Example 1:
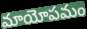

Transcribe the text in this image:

మాయోపమం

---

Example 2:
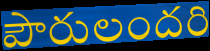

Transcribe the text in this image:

పౌరులందరి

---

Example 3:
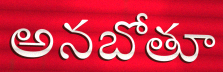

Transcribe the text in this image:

అనబోతూ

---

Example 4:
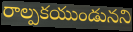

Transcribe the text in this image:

రాల్పకయుండునని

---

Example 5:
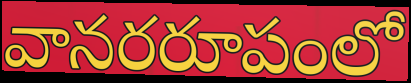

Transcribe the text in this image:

వానరరూపంలో